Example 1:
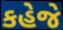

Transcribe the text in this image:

કહેજે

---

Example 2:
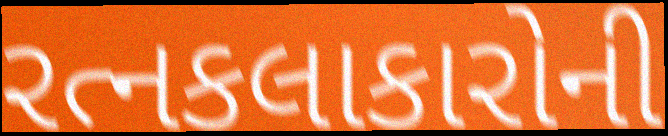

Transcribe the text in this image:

રત્નકલાકારોની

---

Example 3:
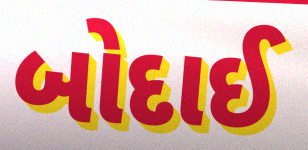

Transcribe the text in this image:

બોદાઈ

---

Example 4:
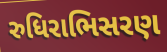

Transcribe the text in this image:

રુધિરાભિસરણ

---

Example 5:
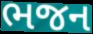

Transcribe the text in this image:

ભજન